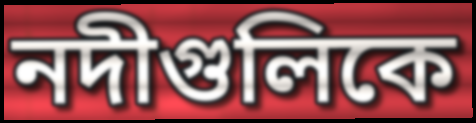
নদীগুলিকে